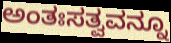
ಅಂತಃಸತ್ವವನ್ನೂ